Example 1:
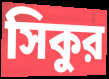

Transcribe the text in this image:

সিকুর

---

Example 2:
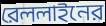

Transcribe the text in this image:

রেললাইনের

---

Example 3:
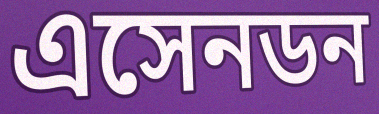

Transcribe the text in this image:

এসেনডন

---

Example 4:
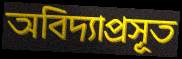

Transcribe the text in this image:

অবিদ্যাপ্রসূত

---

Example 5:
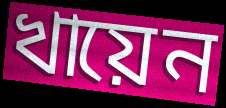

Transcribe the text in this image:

খায়েন